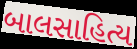
બાલસાહિત્ય